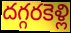
దగ్గరకెళ్లి